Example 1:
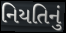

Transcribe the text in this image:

નિયતિનું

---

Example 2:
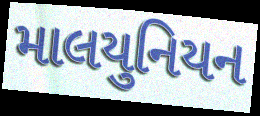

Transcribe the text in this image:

માલયુનિયન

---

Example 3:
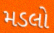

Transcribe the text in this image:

મડલો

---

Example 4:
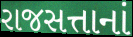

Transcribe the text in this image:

રાજસત્તાનાં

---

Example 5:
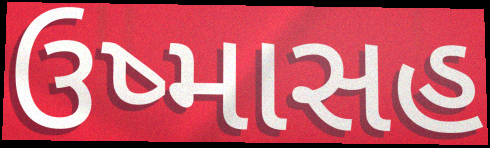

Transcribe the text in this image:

ઉષ્માસહ